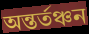
অন্তর্তঞ্চন